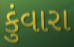
કુંવારા